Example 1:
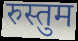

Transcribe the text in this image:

रुस्तुम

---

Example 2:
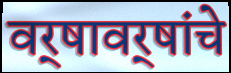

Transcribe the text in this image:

वर्षावर्षांचे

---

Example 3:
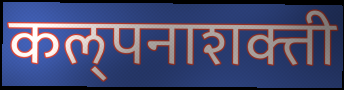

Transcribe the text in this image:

कल्पनाशक्ती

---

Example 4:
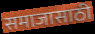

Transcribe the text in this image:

समाजासाठी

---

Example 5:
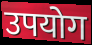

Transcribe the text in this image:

उपयोग